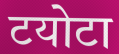
टयोटा